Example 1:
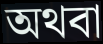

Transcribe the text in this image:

অথবা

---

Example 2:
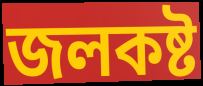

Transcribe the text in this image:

জলকষ্ট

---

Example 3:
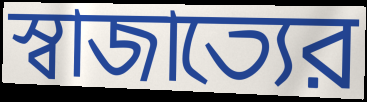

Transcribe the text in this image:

স্বাজাত্যের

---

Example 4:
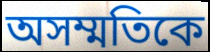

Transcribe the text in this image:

অসম্মতিকে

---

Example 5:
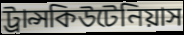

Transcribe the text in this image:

ট্রান্সকিউটেনিয়াস